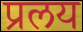
प्रलय